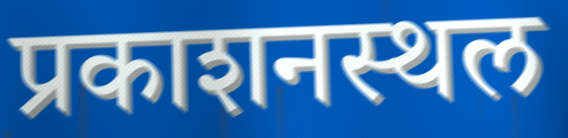
प्रकाशनस्थल